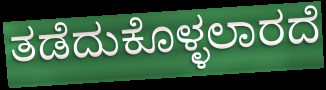
ತಡೆದುಕೊಳ್ಳಲಾರದೆ